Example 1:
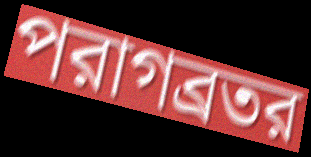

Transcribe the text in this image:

পরাগব্রতর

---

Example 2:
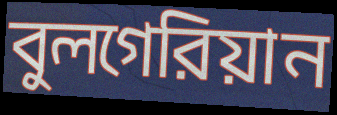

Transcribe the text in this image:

বুলগেরিয়ান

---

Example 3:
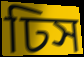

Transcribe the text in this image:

ঢিস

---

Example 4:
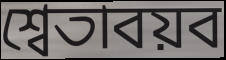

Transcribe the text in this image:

শ্বেতাবয়ব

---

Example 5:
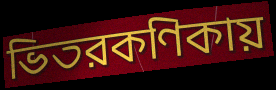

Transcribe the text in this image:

ভিতরকণিকায়